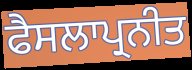
ਫੈਸਲਾਪ੍ਰਨੀਤ